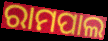
ରାମପାଲ